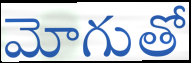
మోగుతో